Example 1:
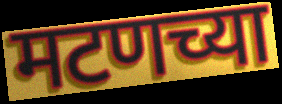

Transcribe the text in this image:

मटणच्या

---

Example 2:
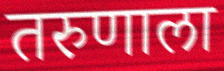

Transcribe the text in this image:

तरुणाला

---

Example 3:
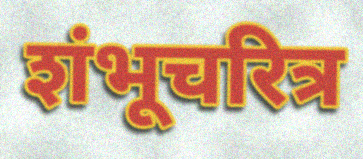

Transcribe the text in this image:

शंभूचरित्र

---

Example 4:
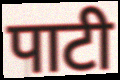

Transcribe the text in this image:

पाटी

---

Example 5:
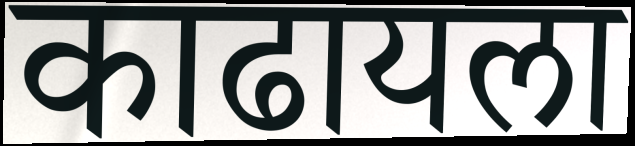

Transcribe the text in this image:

काढायला